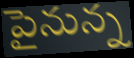
పైనున్న